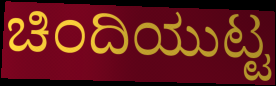
ಚಿಂದಿಯುಟ್ಟ